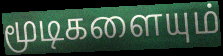
மூடிகளையும்